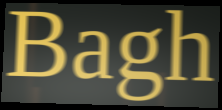
Bagh